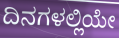
ದಿನಗಳಲ್ಲಿಯೇ